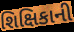
શિક્ષિકાની